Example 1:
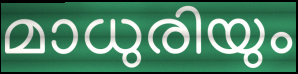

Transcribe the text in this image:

മാധുരിയും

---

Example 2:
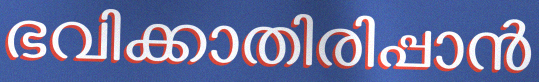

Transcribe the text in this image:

ഭവിക്കാതിരിപ്പാൻ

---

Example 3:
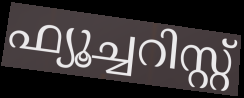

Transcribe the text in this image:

ഫ്യൂച്ചറിസ്റ്റ്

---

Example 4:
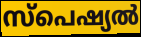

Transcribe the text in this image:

സ്പെഷ്യൽ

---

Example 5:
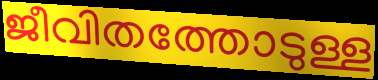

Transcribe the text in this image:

ജീവിതത്തോടുള്ള